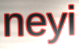
neyi